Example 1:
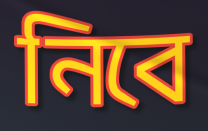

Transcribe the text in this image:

নিবে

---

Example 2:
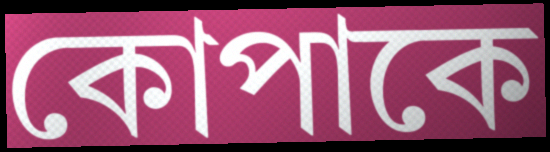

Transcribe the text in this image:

কোপাকে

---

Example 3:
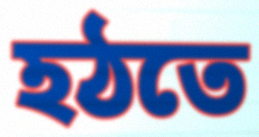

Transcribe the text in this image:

হঠতে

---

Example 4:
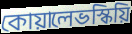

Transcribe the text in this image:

কোয়ালেভস্কিয়ি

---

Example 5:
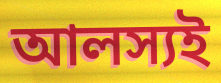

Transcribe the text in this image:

আলস্যই